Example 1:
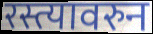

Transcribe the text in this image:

रस्त्यावरुन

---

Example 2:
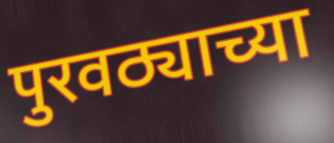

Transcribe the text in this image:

पुरवठ्याच्या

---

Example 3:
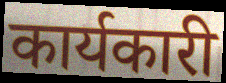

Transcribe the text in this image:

कार्यकारी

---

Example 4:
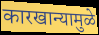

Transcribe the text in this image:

कारखान्यामुळे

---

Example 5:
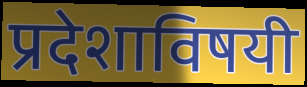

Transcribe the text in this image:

प्रदेशाविषयी